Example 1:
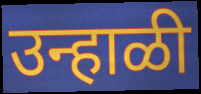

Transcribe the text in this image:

उन्हाळी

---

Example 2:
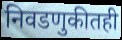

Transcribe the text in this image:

निवडणुकीतही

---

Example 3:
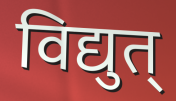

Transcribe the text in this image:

विद्युत्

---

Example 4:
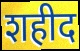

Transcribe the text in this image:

शहीद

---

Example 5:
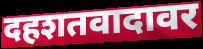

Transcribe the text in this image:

दहशतवादावर